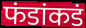
फंडांकडं